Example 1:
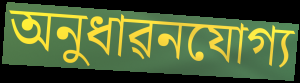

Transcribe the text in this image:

অনুধাৱনযোগ্য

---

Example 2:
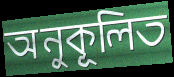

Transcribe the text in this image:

অনুকূলিত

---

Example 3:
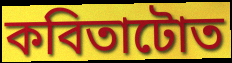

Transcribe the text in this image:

কবিতাটোত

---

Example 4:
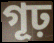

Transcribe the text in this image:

গূঢ়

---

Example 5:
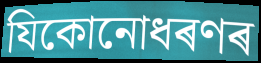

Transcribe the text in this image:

যিকোনোধৰণৰ